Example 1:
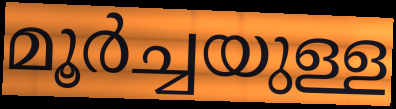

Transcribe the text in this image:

മൂർച്ചയുള്ള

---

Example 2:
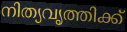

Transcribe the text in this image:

നിത്യവൃത്തിക്ക്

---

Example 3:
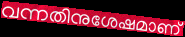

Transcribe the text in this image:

വന്നതിനുശേഷമാണ്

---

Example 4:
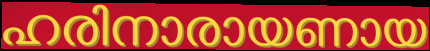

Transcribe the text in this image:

ഹരിനാരായണായ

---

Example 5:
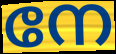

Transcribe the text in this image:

നേ